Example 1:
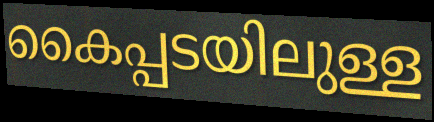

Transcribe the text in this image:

കൈപ്പടയിലുള്ള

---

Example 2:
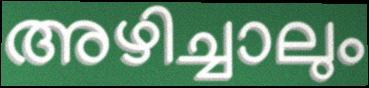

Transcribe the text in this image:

അഴിച്ചാലും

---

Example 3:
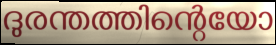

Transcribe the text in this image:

ദുരന്തത്തിന്റെയോ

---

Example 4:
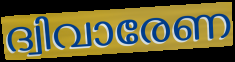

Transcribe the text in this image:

ദ്വിവാരേണ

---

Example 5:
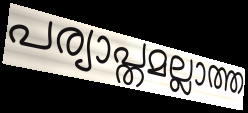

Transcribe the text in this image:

പര്യാപ്തമല്ലാത്ത